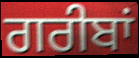
ਗਰੀਬਾਂ